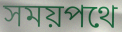
সময়পথে